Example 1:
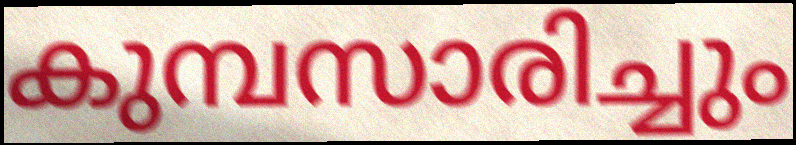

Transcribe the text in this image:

കുമ്പസാരിച്ചും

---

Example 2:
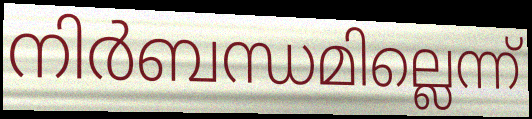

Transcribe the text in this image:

നിർബന്ധമില്ലെന്ന്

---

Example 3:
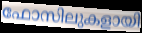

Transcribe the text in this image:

ഫോസിലുകളായി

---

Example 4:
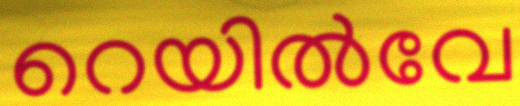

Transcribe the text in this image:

റെയിൽവേ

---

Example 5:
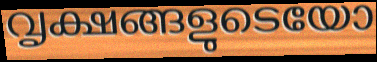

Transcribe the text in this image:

വൃക്ഷങ്ങളുടെയോ